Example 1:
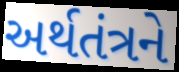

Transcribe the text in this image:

અર્થતંત્રને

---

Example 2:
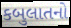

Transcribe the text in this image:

કબુલાતનો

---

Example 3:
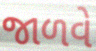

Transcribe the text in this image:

જાળવે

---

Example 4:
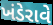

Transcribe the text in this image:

ખંડેરાવે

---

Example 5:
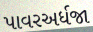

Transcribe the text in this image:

પાવરઅર્ધજા